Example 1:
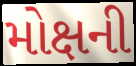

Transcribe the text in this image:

મોક્ષની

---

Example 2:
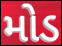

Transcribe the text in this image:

મોડ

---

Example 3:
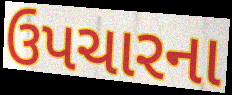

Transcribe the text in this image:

ઉપચારના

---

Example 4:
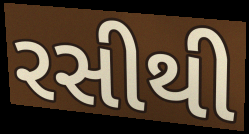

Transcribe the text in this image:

રસીથી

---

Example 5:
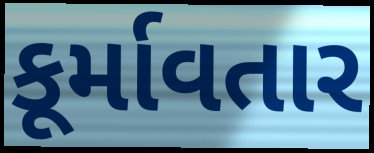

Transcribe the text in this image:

કૂર્માવતાર